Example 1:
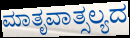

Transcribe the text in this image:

ಮಾತೃವಾತ್ಸಲ್ಯದ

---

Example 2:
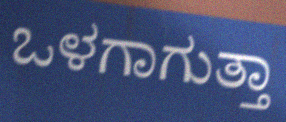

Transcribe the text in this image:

ಒಳಗಾಗುತ್ತಾ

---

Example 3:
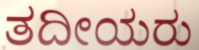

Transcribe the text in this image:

ತದೀಯರು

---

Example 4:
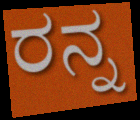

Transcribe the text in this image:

ರನ್ನ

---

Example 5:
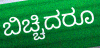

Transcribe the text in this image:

ಬಿಚ್ಚಿದರೂ